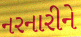
નરનારીને